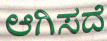
ಆಗಿಸದೆ